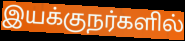
இயக்குநர்களில்